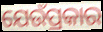
ଯେଉଁପ୍ରକାର